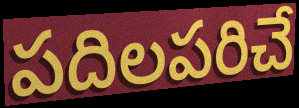
పదిలపరిచే